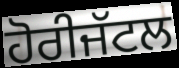
ਹੋਰੀਜੱਟਲ